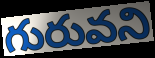
గురువని